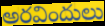
అరవిందులు